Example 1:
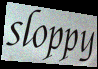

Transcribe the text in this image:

sloppy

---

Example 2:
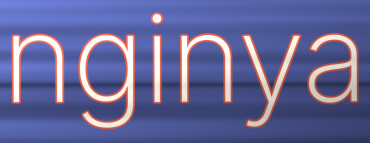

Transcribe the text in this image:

nginya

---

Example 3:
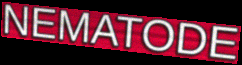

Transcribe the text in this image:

NEMATODE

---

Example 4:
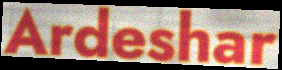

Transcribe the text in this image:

Ardeshar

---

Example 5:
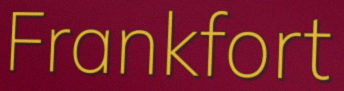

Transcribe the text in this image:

Frankfort